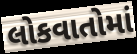
લોકવાતોમાં